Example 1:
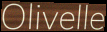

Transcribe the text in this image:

Olivelle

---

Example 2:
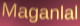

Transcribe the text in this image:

Maganlal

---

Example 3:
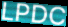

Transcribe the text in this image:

LPDC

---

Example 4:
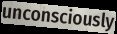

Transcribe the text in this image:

unconsciously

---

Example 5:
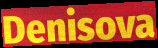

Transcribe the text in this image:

Denisova